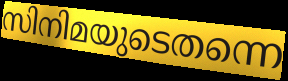
സിനിമയുടെതന്നെ